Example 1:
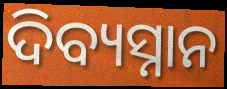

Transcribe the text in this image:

ଦିବ୍ୟସ୍ନାନ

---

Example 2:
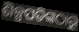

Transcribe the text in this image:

ଶିଳ୍ପପତିଙ୍କଠାରୁ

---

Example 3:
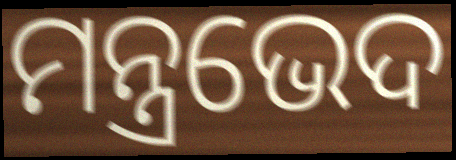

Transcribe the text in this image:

ମନ୍ତ୍ରଭେଦ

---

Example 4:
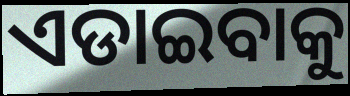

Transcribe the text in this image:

ଏଡାଇବାକୁ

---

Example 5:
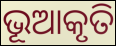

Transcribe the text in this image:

ଭୂଆକୃତି